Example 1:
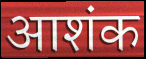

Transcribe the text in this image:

आशंक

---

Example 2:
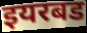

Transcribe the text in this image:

इयरबड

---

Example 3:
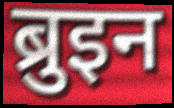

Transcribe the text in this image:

ब्रुइन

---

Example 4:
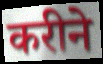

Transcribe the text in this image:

करीने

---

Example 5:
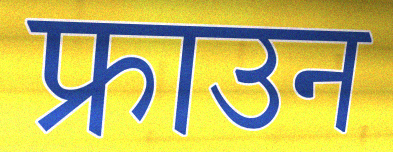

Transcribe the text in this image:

फ्राउन